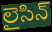
లైసిన్